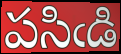
పసిఁడి